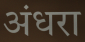
अंधरा